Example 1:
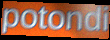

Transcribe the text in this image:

potondi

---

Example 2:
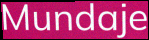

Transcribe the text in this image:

Mundaje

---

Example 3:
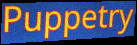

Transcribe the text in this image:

Puppetry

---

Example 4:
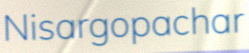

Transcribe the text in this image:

Nisargopachar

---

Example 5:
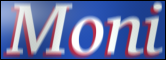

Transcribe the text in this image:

Moni